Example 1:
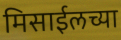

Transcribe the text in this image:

मिसाईलच्या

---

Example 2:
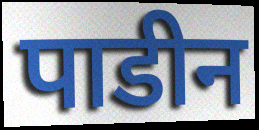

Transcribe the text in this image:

पाडीन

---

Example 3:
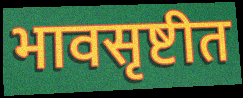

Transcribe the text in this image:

भावसृष्टीत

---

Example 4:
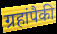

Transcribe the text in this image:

ग्रहांपैकी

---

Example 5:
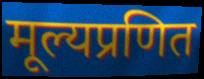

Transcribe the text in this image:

मूल्यप्रणित